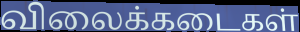
விலைக்கடைகள்